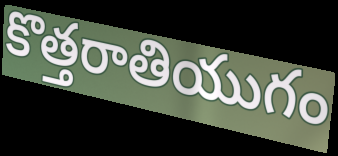
కొత్తరాతియుగం